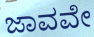
ಜಾವವೇ